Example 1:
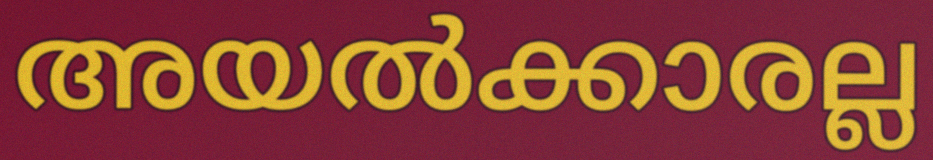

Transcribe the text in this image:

അയൽക്കാരല്ല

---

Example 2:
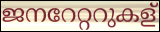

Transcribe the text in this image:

ജനറേറ്ററുകള്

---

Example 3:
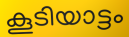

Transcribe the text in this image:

കൂടിയാട്ടം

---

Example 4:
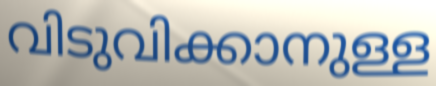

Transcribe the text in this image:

വിടുവിക്കാനുള്ള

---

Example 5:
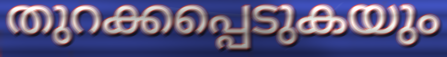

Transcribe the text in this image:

തുറക്കപ്പെടുകയും